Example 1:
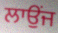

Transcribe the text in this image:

ਲਾਉਂਜ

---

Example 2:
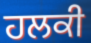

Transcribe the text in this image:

ਹਲਕੀ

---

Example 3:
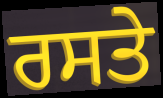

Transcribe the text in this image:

ਰਸਤੇ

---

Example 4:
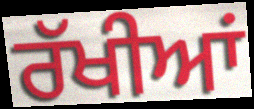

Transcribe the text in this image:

ਰੱਖੀਆਂ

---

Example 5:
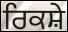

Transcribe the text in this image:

ਰਿਕਸ਼ੇ